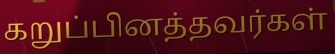
கறுப்பினத்தவர்கள்